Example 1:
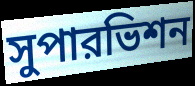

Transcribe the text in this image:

সুপারভিশন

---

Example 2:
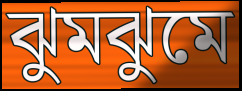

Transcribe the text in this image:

ঝুমঝুমে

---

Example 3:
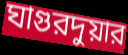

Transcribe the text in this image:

ঘাগুরদুয়ার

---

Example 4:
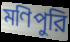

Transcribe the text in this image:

মণিপুরি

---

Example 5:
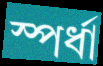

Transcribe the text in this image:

স্পর্ধা